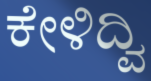
ಕೇಳಿದ್ವಿ